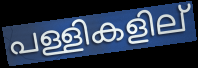
പള്ളികളില്